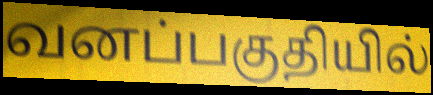
வனப்பகுதியில்